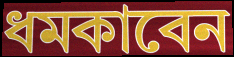
ধমকাবেন